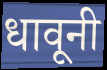
धावूनी